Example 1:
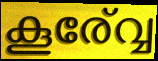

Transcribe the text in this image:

കൂര്വ്വേ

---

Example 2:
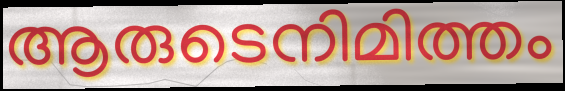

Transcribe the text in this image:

ആരുടെനിമിത്തം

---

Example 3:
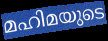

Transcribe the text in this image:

മഹിമയുടെ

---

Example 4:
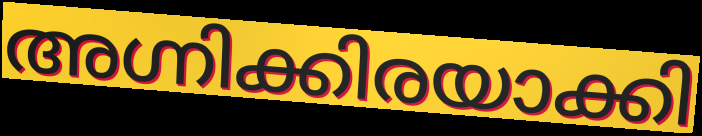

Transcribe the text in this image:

അഗ്നിക്കിരയാക്കി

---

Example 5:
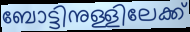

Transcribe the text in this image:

ബോട്ടിനുള്ളിലേക്ക്